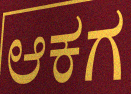
ಆಕಗ